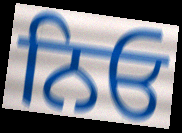
ਨਿਓ